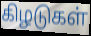
கிழடுகள்